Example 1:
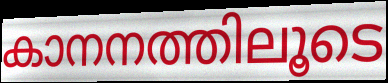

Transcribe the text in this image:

കാനനത്തിലൂടെ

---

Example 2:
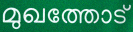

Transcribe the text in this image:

മുഖത്തോട്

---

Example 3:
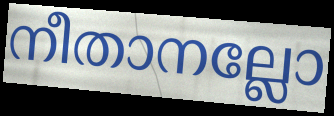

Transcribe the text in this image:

നീതാനല്ലോ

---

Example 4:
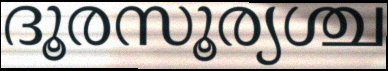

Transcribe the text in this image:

ദൂരസൂര്യശ്ച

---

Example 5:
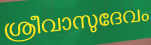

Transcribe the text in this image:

ശ്രീവാസുദേവം